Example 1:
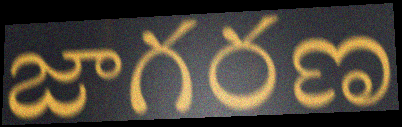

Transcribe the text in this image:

జాగరణ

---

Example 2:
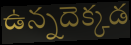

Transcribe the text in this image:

ఉన్నదెక్కడ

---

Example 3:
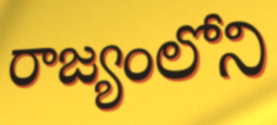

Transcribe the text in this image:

రాజ్యంలోని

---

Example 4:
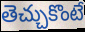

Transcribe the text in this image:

తెచ్చుకొంటే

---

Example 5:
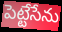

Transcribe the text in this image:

పెట్టేసేను